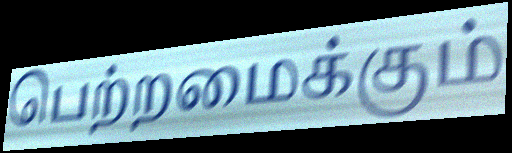
பெற்றமைக்கும்